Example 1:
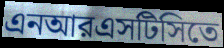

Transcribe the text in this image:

এনআরএসটিসিতে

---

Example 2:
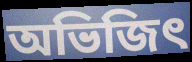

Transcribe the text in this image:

অভিজিৎ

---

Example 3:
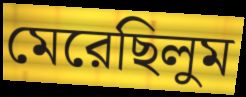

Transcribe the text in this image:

মেরেছিলুম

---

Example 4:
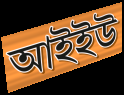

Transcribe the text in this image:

আইইউ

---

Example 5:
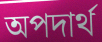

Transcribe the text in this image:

অপদার্থ